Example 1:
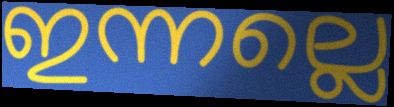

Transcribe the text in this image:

ഇന്നല്ലെ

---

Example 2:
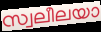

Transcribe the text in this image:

സ്വലീലയാ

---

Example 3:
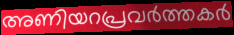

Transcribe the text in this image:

അണിയറപ്രവർത്തകർ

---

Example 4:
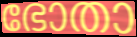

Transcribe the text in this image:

ഭോതാ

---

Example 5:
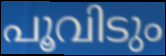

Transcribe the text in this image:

പൂവിടും